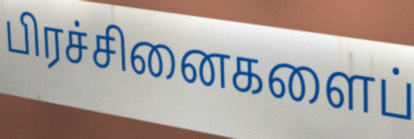
பிரச்சினைகளைப்